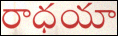
రాధయా